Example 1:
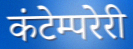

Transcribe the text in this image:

कंटेम्परेरी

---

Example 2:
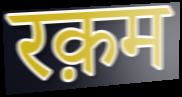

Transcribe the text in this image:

रक़म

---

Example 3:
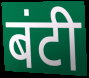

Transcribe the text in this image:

बंटी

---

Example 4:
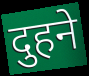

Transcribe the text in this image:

दुहने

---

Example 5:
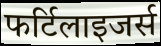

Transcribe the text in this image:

फर्टिलाइजर्स